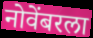
नोवेंबरला